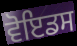
ਵੋਇਡਸ